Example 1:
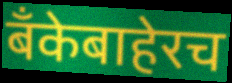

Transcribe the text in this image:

बँकेबाहेरच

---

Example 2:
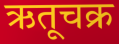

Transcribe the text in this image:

ऋतूचक्र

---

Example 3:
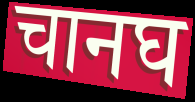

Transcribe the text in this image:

चानघ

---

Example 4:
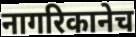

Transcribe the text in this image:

नागरिकानेच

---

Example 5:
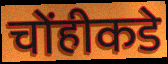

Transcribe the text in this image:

चोंहीकडे